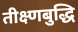
तीक्ष्णबुद्धि